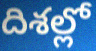
దిశల్లో